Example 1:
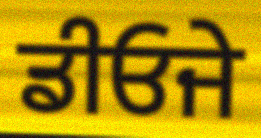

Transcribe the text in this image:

ਡੀਓਜੇ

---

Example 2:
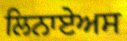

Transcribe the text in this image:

ਲਿਨਾਏਅਸ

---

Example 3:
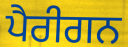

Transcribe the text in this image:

ਪੈਰੀਗਨ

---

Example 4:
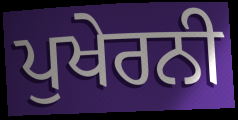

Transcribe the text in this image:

ਪੁਖੇਰਨੀ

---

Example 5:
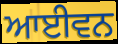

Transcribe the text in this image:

ਆਈਵਨ